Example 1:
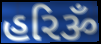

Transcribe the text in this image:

હરિૐ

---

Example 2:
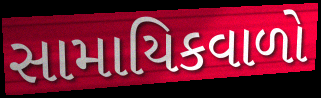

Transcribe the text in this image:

સામાયિકવાળો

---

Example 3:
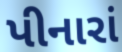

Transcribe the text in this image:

પીનારાં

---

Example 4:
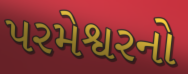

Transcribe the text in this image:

પરમેશ્વરનો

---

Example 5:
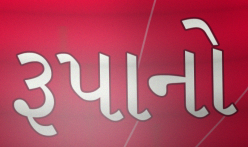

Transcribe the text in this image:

રૂપાનો